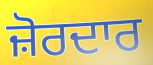
ਜ਼ੋਰਦਾਰ